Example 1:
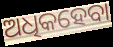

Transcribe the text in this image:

ଅଧିକହେବା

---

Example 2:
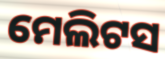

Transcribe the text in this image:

ମେଲିଟସ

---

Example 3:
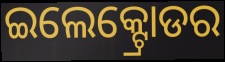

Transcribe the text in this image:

ଇଲେକ୍ଟ୍ରୋଡର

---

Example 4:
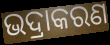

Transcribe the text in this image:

ଭଦ୍ରାକରଣ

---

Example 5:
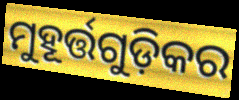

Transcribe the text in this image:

ମୁହୂର୍ତ୍ତଗୁଡ଼ିକର